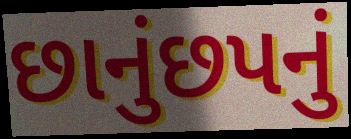
છાનુંછપનું